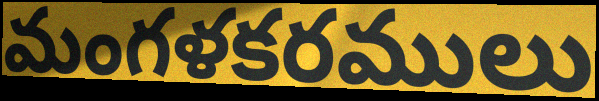
మంగళకరములు